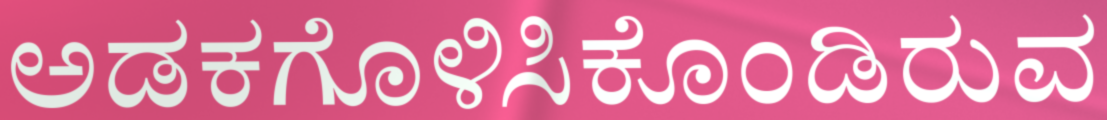
ಅಡಕಗೊಳಿಸಿಕೊಂಡಿರುವ